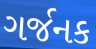
ગર્જનક